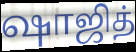
ஷாஜித்